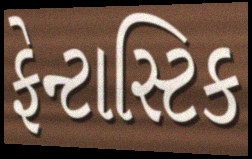
ફેન્ટાસ્ટિક